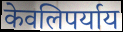
केवलिपर्याय